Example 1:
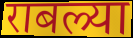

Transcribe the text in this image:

राबल्या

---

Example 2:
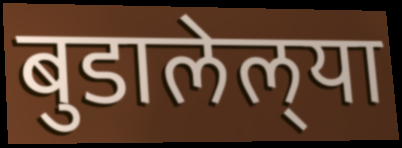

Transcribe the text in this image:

बुडालेल्या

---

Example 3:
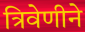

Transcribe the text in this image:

त्रिवेणीने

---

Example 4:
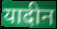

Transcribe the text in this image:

यादीन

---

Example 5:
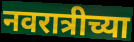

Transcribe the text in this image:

नवरात्रीच्या